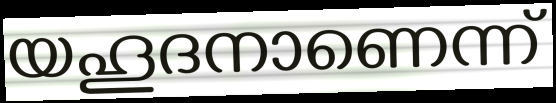
യഹൂദനാണെന്ന്